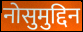
नोसुमुद्दिन